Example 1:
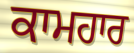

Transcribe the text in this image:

ਕਾਮਹਾਰ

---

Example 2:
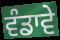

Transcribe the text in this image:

ਵੰਡਾਵੇ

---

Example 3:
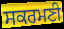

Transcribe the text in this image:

ਸਕਰਮਣੀ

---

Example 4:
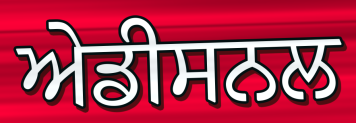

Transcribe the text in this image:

ਅੇਡੀਸਨਲ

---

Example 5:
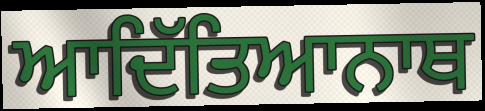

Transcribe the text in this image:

ਆਦਿੱਤਿਆਨਾਥ